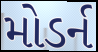
મોડર્ન